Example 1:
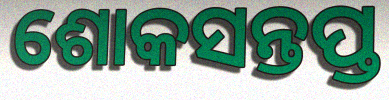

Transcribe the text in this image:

ଶୋକସନ୍ତପ୍ତ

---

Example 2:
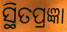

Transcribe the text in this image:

ସ୍ଥିତପ୍ରଜ୍ଞା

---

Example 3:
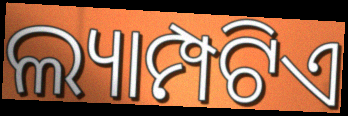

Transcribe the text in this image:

ଲ୍ୟାମ୍ପଟିଏ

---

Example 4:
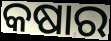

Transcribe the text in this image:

କଷାର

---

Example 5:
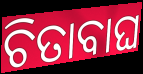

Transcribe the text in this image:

ଚିତାବାଘ